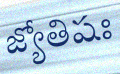
జ్యోతిషః